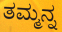
ತಮ್ಮನ್ನ